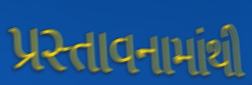
પ્રસ્તાવનામાંથી